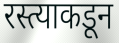
रस्त्याकडून